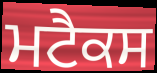
ਮਟੈਕਸ